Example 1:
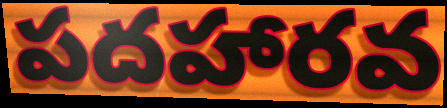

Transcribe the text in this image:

పదహారవ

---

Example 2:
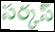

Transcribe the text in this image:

సర్కస్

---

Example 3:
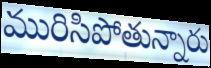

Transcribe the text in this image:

మురిసిపోతున్నారు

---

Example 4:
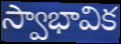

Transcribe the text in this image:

స్వాభావిక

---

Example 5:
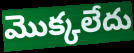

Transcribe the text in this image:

మొక్కలేదు